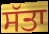
ਸੱਤਾ